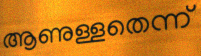
ആണുള്ളതെന്ന്